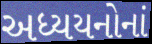
અધ્યયનોનાં